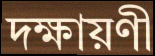
দক্ষায়ণী